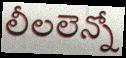
లీలలెన్నో